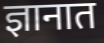
ज्ञानात